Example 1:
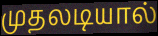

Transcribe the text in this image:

முதலடியால்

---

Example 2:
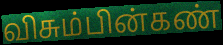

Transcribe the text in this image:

விசும்பின்கண்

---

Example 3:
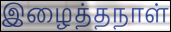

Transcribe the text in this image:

இழைத்தநாள்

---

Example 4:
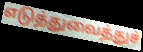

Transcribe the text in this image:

எடுத்துவைத்துச்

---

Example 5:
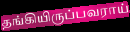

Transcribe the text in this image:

தங்கியிருப்பவராய்